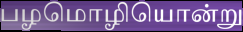
பழமொழியொன்று